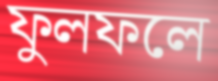
ফুলফলে